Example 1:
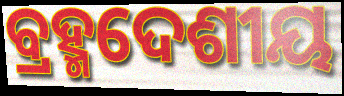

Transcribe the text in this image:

ବ୍ରହ୍ମଦେଶୀୟ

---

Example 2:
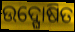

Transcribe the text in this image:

ଉଦ୍ଘୋଷିତ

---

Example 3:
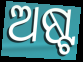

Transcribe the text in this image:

ଅଷ୍ଟ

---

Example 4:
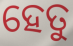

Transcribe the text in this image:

ହେତୁ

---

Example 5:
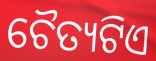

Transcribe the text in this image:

ଚୈତ୍ୟଟିଏ